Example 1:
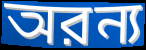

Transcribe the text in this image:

অরন্য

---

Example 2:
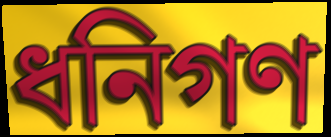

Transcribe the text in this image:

ধনিগণ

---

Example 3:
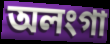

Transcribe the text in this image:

অলংগা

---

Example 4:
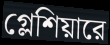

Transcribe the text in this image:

গ্লেশিয়ারে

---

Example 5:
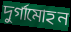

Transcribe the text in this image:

দুর্গামোহন